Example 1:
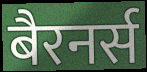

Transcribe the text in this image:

बैरनर्स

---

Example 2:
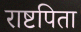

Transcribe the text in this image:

राष्टपिता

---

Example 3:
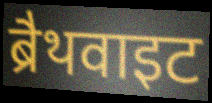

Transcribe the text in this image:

ब्रैथवाइट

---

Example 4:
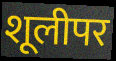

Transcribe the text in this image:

शूलीपर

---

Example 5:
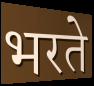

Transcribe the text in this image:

भरते